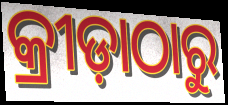
କ୍ରୀଡ଼ାଠାରୁ